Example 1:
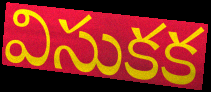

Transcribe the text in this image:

విసుకక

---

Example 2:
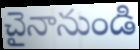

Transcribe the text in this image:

చైనానుండి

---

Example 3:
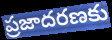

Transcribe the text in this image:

ప్రజాదరణకు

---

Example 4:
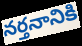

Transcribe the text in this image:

నర్తనానికి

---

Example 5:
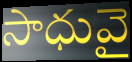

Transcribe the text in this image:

సాధువై